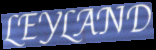
LEYLAND